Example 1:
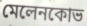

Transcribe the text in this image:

মেলেনকোভ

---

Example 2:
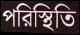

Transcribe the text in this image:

পরিস্থিতি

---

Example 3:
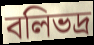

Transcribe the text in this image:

বলিভদ্র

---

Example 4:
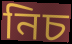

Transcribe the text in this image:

নিচ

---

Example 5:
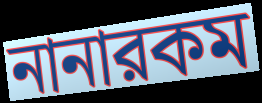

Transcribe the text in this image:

নানারকম